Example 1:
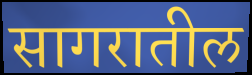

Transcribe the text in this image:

सागरातील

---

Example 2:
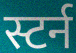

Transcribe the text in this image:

स्टर्न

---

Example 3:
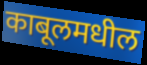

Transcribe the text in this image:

काबूलमधील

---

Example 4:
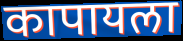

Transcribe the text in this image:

कापायला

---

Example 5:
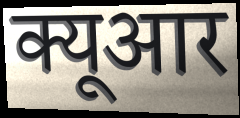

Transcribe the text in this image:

क्यूआर